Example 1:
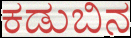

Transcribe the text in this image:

ಕಡುಬಿನ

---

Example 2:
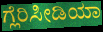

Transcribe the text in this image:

ಗ್ಲೆರಿಸೀಡಿಯಾ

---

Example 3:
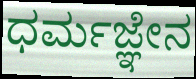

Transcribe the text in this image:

ಧರ್ಮಜ್ಞೇನ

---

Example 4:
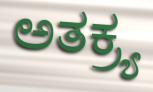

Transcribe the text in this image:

ಅತಕ್ರ್ಯ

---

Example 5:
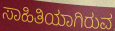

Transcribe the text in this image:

ಸಾಹಿತಿಯಾಗಿರುವ